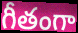
గీతంగా